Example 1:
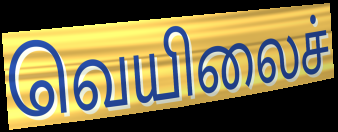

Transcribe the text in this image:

வெயிலைச்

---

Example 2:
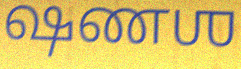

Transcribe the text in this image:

ஷணஶ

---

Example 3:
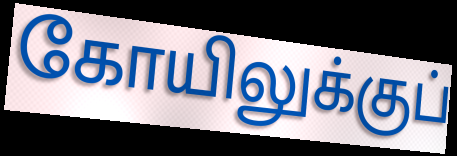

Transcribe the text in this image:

கோயிலுக்குப்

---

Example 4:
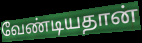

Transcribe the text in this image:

வேண்டியதான்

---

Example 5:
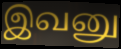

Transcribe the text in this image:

இவனு